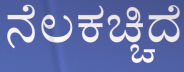
ನೆಲಕಚ್ಚಿದೆ